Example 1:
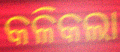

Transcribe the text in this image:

କଳିକଲା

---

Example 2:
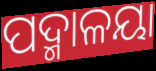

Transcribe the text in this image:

ପଦ୍ମାଳୟା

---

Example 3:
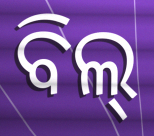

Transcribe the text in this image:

ବିଲ୍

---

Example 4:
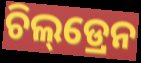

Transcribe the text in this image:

ଚିଲ୍‌ଡ୍ରେନ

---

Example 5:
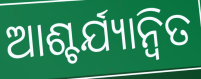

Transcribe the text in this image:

ଆଶ୍ଚର୍ଯ୍ୟାନ୍ୱିତ